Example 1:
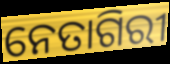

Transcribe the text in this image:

ନେତାଗିରୀ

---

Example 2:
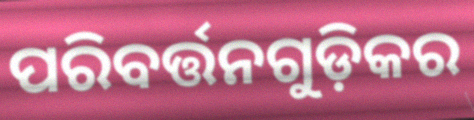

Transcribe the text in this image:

ପରିବର୍ତ୍ତନଗୁଡ଼ିକର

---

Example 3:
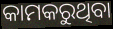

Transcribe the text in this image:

କାମକରୁଥିବା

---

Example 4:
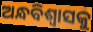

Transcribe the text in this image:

ଅନ୍ଧବିଶ୍ୱାସକୁ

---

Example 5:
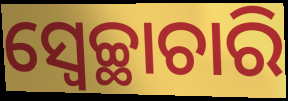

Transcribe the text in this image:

ସ୍ଵେଚ୍ଛାଚାରି